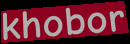
khobor